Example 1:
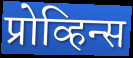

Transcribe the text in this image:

प्रोव्हिन्स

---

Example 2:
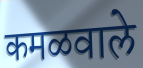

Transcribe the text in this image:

कमळवाले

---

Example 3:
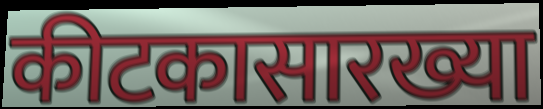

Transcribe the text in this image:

कीटकासारख्या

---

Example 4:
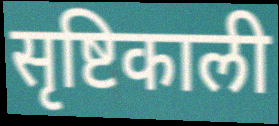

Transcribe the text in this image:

सृष्टिकाली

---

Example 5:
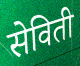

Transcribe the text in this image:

सेविती